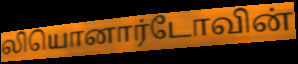
லியொனார்டோவின்